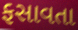
ફસાવતા